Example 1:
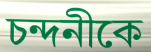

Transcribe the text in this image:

চন্দনীকে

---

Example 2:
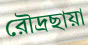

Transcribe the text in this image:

রৌদ্রছায়া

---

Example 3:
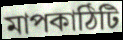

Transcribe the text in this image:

মাপকাঠিটি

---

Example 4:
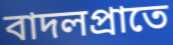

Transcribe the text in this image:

বাদলপ্রাতে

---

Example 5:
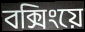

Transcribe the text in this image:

বক্সিংয়ে